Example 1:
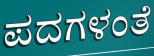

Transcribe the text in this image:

ಪದಗಳಂತೆ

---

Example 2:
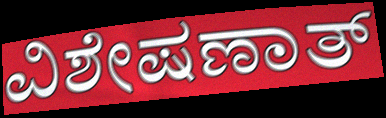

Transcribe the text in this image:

ವಿಶೇಷಣಾತ್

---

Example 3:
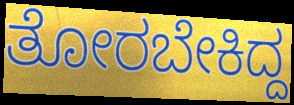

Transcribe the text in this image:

ತೋರಬೇಕಿದ್ದ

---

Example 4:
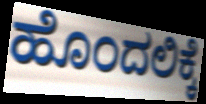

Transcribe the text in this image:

ಹೊಂದಲಿಕ್ಕೆ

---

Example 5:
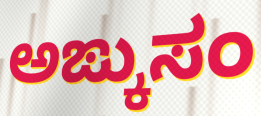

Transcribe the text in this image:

ಅಙ್ಕುಸಂ